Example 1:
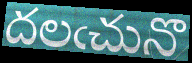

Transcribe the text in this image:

దలఁచునొ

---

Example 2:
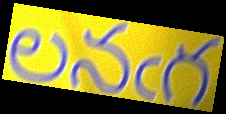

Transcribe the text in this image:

లనఁగ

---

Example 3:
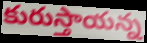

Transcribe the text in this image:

కురుస్తాయన్న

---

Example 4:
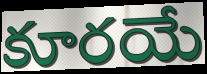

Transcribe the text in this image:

కూరయే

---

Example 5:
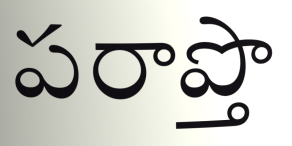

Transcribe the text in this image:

పరాప్తొ